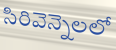
సిరివెన్నెలలో